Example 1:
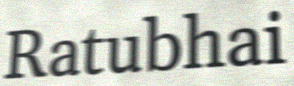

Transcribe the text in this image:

Ratubhai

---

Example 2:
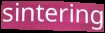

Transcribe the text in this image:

sintering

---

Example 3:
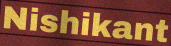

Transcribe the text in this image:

Nishikant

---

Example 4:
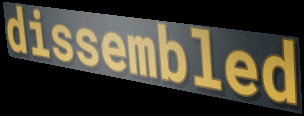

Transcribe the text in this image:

dissembled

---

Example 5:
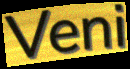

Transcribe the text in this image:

Veni